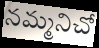
నమ్మనిచో